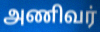
அணிவர்